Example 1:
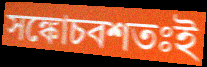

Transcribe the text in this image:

সঙ্কোচবশতঃই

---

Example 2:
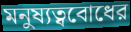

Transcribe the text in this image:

মনুষ্যত্ববোধের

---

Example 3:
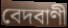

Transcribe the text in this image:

বেদবাণী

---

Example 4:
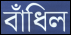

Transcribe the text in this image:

বাঁধিল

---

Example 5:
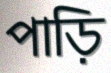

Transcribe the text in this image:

পাড়ি